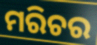
ମରିଚର